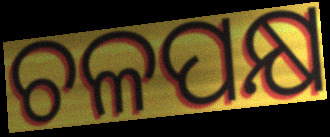
ଚଳପକ୍ଷ